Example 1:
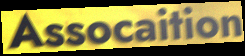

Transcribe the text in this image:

Assocaition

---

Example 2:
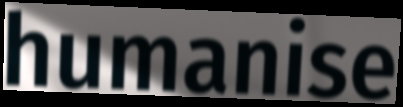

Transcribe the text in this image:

humanise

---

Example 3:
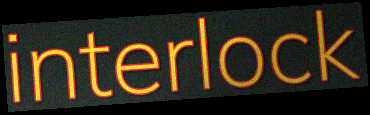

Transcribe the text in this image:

interlock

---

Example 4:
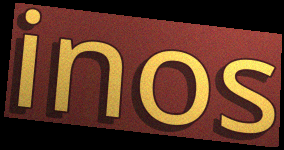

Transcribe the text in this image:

inos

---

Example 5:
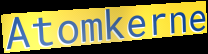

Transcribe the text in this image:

Atomkerne